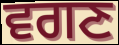
ਵਗਣ